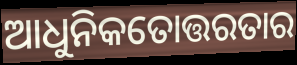
ଆଧୁନିକତୋତ୍ତରତାର